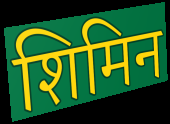
शिमिन